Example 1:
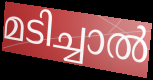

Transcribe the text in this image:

മടിച്ചാൽ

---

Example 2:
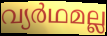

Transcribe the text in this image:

വ്യർഥമല്ല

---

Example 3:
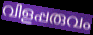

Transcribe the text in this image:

വിളപ്പരുവം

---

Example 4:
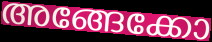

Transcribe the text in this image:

അങ്ങേക്കോ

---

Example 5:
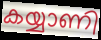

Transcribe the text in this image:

കയ്യാണി